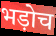
भड़ोच